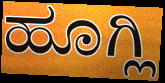
ಹೂಗ್ಲಿ